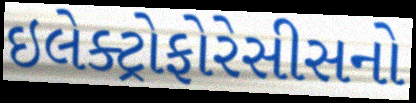
ઇલેક્ટ્રોફોરેસીસનો